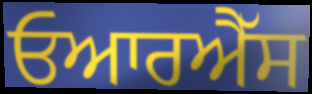
ਓਆਰਐੱਸ